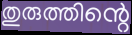
തുരുത്തിന്റെ